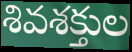
శివశక్తుల